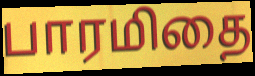
பாரமிதை